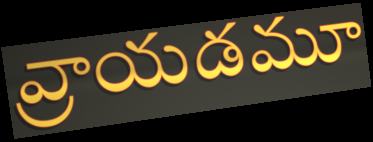
వ్రాయడమూ